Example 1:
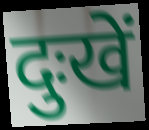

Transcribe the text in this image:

दुःखें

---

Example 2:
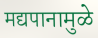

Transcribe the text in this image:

मद्यपानामुळे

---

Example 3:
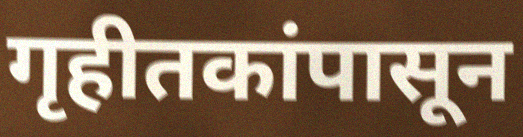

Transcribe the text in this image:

गृहीतकांपासून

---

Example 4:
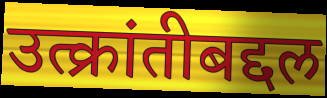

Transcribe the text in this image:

उत्क्रांतीबद्दल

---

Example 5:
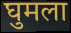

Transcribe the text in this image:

घुमला